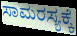
ಸಾಮರಸ್ಯಕ್ಕೆ